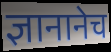
ज्ञानानेच